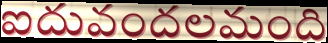
ఐదువందలమంది